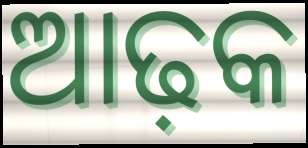
ଆଢ଼କ